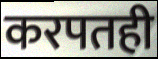
करपतही